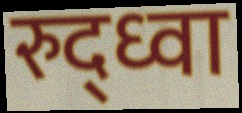
रुद्ध्वा